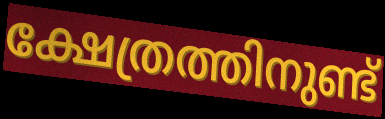
ക്ഷേത്രത്തിനുണ്ട്